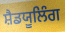
ਸ਼ੈਡਯੂਲਿੰਗ